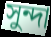
সুন্দা